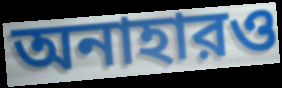
অনাহারও